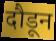
दौडून